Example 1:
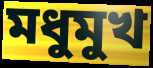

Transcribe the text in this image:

মধুমুখ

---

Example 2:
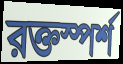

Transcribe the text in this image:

রক্তস্পর্শ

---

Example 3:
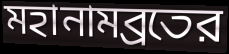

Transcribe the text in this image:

মহানামব্রতের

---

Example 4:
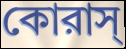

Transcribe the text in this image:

কোরাস্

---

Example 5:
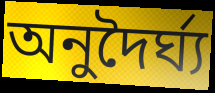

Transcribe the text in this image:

অনুদৈর্ঘ্য